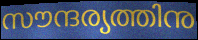
സൗന്ദര്യത്തിനു